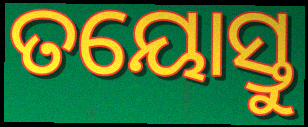
ତୟୋସ୍ତୁ